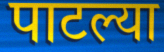
पाटल्या